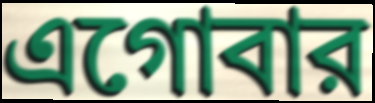
এগোবার